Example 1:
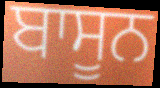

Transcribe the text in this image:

ਬਾਸੂਨ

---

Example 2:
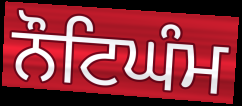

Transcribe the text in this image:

ਨੌਟਿਘੰਮ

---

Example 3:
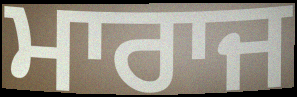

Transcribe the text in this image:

ਮਾਰਾਜ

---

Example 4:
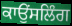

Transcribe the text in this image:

ਕਾਉੰਸਲਿੰਗ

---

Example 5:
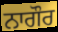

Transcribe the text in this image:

ਨਾਗੌਰ